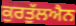
ਕੁਰਤੁੱਲਐਨ